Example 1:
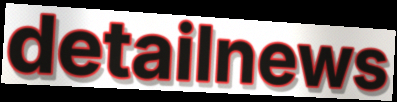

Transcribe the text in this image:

detailnews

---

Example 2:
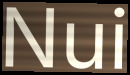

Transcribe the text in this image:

Nui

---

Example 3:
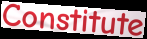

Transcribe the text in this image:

Constitute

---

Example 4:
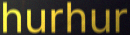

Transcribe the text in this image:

hurhur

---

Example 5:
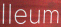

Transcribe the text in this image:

Ileum